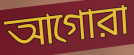
আগোরা